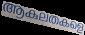
ആകുലതകളെ